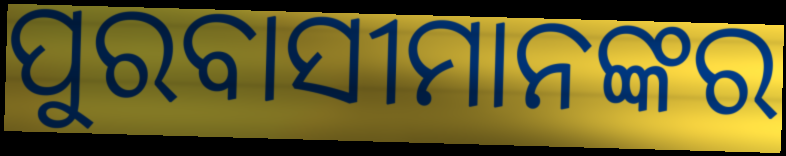
ପୁରବାସୀମାନଙ୍କର